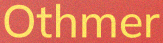
Othmer